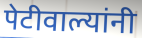
पेटीवाल्यांनी